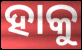
ହାକୁ